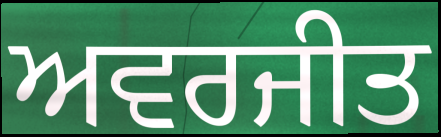
ਅਵਰਜੀਤ